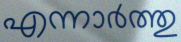
എന്നാർത്തു